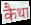
कैथा